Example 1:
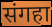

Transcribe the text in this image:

संगहा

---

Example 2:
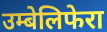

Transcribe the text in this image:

उम्बेलिफेरा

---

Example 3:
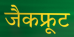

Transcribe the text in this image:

जैकफ्रूट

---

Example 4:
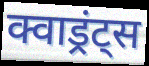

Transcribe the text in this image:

क्वाड्रंट्स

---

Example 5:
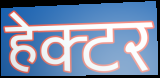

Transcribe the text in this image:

हेक्‍टर